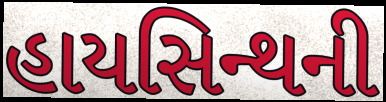
હાયસિન્થની